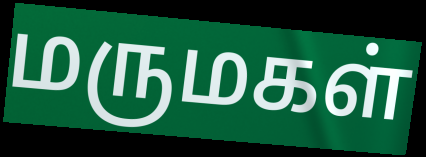
மருமகள்